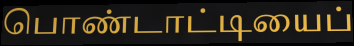
பொண்டாட்டியைப்